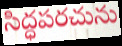
సిద్ధపరచును